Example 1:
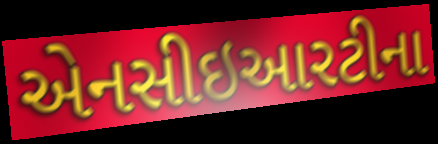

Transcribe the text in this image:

એનસીઇઆરટીના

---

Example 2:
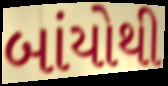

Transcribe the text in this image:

બાંયોથી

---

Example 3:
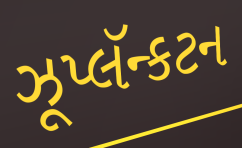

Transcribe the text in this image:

ઝૂપ્લૅન્કટન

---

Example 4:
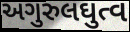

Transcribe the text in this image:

અગુરુલઘુત્વ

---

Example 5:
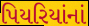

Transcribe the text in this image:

પિયરિયાંનાં